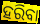
ହରିବା